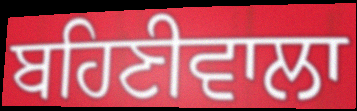
ਬਹਿਣੀਵਾਲਾ